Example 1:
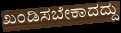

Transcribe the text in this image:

ಖಂಡಿಸಬೇಕಾದದ್ದು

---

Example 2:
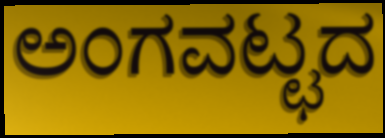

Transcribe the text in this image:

ಅಂಗವಟ್ಟದ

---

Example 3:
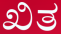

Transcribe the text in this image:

ಖಿತ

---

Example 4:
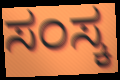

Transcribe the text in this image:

ಸಂಸ್ಕ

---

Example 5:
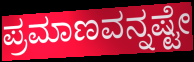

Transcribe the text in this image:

ಪ್ರಮಾಣವನ್ನಷ್ಟೇ